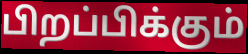
பிறப்பிக்கும்